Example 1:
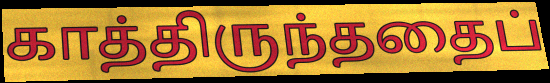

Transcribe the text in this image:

காத்திருந்ததைப்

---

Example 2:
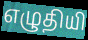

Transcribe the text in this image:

எழுதியி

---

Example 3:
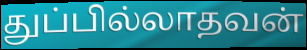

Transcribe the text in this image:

துப்பில்லாதவன்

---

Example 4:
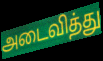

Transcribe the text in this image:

அடைவித்து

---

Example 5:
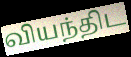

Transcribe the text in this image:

வியந்திட